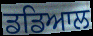
ਡਡਿਆਲ